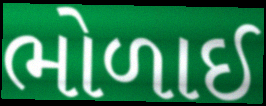
ભોળાઈ